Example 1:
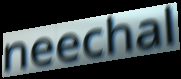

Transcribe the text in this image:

neechal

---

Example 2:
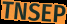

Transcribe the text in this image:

TNSEP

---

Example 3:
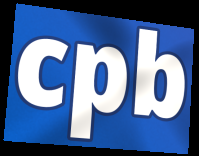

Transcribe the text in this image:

cpb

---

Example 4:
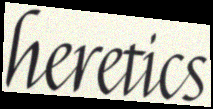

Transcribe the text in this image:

heretics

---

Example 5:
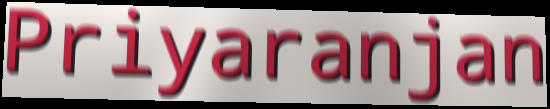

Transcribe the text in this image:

Priyaranjan